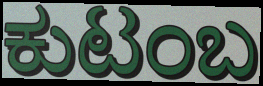
ಕುಟಂಬ